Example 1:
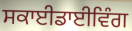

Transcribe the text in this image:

ਸਕਾਈਡਾਈਵਿੰਗ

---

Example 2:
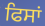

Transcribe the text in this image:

ਫਿਸਾਂ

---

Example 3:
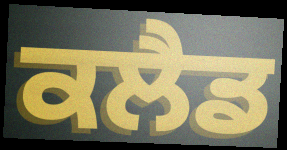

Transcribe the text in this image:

ਕਲੈਡ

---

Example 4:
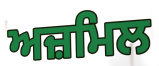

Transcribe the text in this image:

ਅਜ਼ਮਿਲ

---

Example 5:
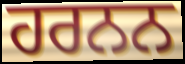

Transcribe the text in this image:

ਹਰਨਨ